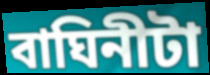
বাঘিনীটা